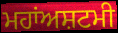
ਮਹਾਂਅਸ਼ਟਮੀ